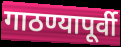
गाठण्यापूर्वी